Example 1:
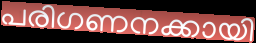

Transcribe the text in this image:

പരിഗണനക്കായി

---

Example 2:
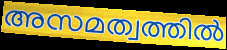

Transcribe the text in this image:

അസമത്വത്തിൽ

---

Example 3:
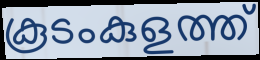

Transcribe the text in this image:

കൂടംകുളത്ത്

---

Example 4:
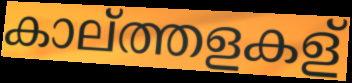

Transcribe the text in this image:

കാല്ത്തളകള്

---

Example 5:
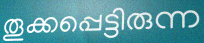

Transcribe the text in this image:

തൂക്കപ്പെട്ടിരുന്ന